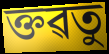
ক্তৱতু